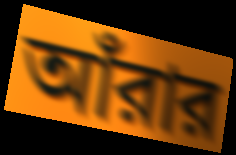
আঁরার